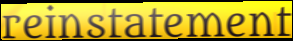
reinstatement